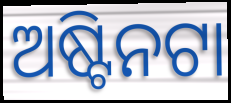
ଅଷ୍ଟିନଟା